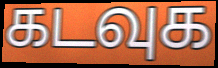
கடவுக